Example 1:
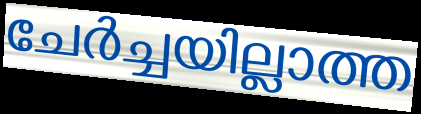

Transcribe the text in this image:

ചേർച്ചയില്ലാത്ത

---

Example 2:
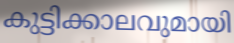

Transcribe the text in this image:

കുട്ടിക്കാലവുമായി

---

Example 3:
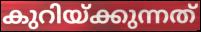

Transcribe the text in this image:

കുറിയ്ക്കുന്നത്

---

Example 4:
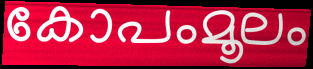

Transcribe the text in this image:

കോപംമൂലം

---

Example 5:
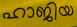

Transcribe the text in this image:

ഹാജിയ